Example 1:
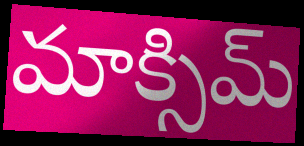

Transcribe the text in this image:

మాక్సిమ్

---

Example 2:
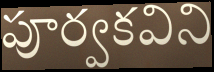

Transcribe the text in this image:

పూర్వకవిని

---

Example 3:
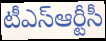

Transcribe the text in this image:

టీఎస్ఆర్టీసీ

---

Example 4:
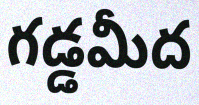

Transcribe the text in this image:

గడ్డమీద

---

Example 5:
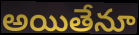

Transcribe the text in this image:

అయితేనూ